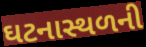
ઘટનાસ્થળની